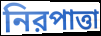
নিরপাত্তা